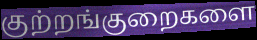
குற்றங்குறைகளை